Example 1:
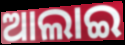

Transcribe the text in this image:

ଆଲାଇ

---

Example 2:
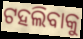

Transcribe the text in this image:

ଟହଲିବାକୁ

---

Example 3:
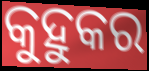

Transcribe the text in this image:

କୁହୁକର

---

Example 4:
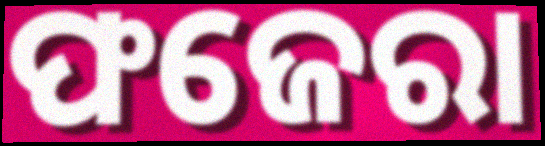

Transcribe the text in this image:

ଫଜେରା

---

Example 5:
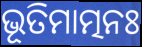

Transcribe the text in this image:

ଭୂତିମାତ୍ମନଃ